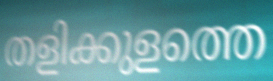
തളിക്കുളത്തെ